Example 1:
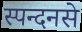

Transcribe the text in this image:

स्पन्दनसे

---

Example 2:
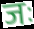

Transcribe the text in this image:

जः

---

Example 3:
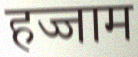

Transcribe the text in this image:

हज्जाम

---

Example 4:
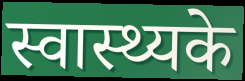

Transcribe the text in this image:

स्वास्थ्यके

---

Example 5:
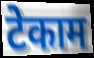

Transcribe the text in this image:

टेकाम